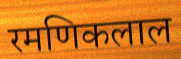
रमणिकलाल